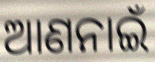
ଆଣନାଇଁ